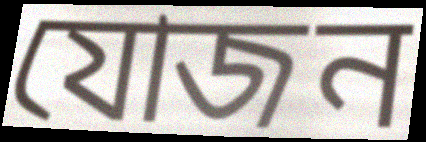
যোজন